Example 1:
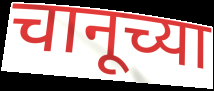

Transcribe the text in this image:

चानूच्या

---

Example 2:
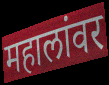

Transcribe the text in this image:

महालांवर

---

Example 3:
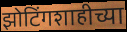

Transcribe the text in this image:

झोटिंगशाहीच्या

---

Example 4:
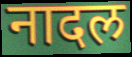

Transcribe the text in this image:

नादल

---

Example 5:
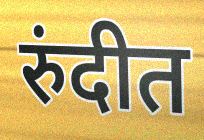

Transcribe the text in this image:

रुंदीत